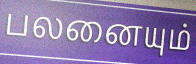
பலனையும்